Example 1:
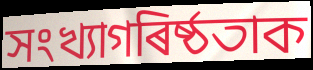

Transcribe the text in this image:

সংখ্যাগৰিষ্ঠতাক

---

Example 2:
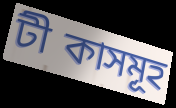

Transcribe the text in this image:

টীকাসমূহ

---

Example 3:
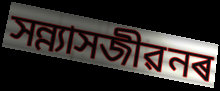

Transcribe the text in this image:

সন্ন্যাসজীৱনৰ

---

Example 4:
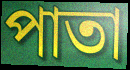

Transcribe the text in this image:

পাতা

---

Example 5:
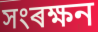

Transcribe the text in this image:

সংৰক্ষন